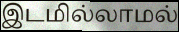
இடமில்லாமல்